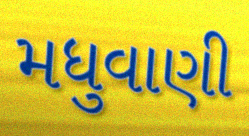
મધુવાણી